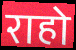
राहो